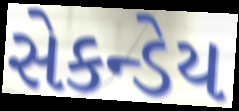
સેકન્ડેય